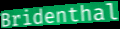
Bridenthal